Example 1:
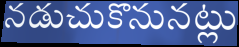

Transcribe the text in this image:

నడుచుకొనునట్లు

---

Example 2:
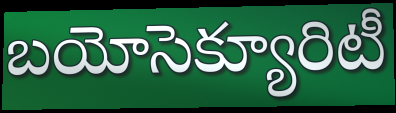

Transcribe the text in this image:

బయోసెక్యూరిటీ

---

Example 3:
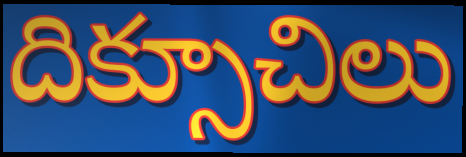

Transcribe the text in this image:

దిక్సూచిలు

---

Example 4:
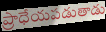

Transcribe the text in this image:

ప్రాధేయపడుతాడు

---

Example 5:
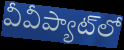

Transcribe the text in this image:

వీవీప్యాట్‌లో